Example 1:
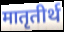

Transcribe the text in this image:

मातृतीर्थ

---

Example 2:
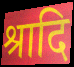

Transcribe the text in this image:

श्रादि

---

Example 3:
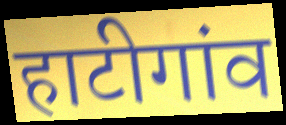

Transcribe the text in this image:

हाटीगांव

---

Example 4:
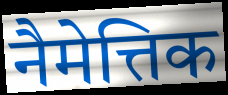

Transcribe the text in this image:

नैमेत्तिक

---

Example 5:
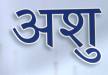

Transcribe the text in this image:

अशु